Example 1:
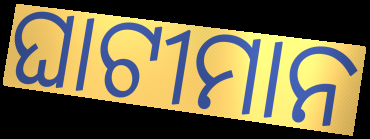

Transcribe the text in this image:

ଘାଟୀମାନ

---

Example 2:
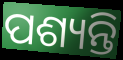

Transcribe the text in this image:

ପଶ୍ୟନ୍ତି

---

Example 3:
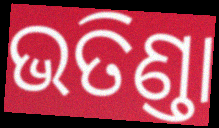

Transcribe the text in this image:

ଭତିଣ୍ଡା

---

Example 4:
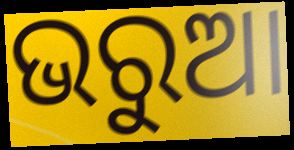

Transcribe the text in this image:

ଭରୁଆ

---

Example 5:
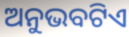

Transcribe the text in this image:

ଅନୁଭବଟିଏ